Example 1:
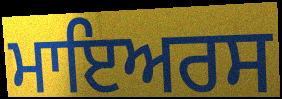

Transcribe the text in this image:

ਮਾਇਅਰਸ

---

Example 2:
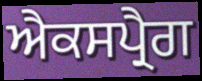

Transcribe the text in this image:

ਐਕਸਪ੍ਰੈਗ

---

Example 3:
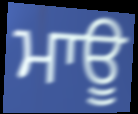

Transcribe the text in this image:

ਮਾਊ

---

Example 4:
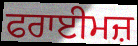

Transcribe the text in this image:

ਫਰਾਈਮਜ਼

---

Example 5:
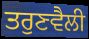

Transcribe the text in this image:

ਤਰੁਣਵੈਲੀ